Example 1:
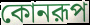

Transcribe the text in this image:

কোনরূপ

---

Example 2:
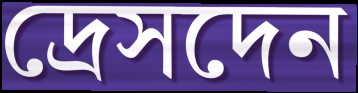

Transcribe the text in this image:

দ্রেসদেন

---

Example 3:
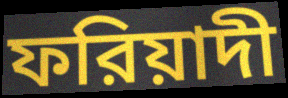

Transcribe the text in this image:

ফরিয়াদী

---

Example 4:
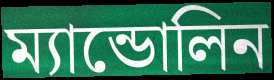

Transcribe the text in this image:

ম্যান্ডোলিন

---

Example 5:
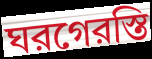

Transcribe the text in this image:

ঘরগেরস্তি